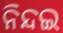
ନିନ୍ଦଇ